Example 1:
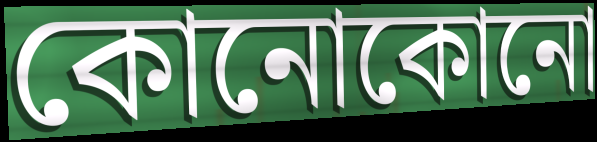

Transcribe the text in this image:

কোনোকোনো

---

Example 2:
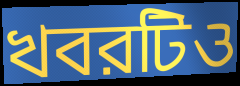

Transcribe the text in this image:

খবরটিও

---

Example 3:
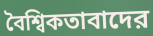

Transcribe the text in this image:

বৈশ্বিকতাবাদের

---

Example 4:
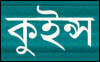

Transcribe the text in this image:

কুইন্স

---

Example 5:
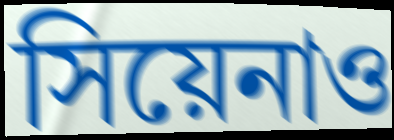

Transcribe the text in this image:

সিয়েনাও